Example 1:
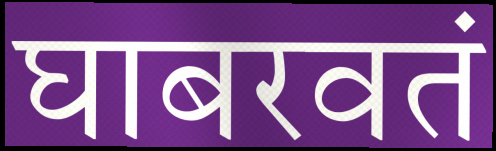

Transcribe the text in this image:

घाबरवतं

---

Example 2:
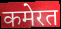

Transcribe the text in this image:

कमेरत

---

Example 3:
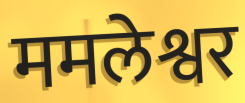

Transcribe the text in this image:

ममलेश्वर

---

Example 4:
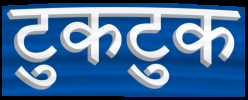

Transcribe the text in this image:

टुकटुक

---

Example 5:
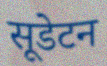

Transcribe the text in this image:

सूडेटन